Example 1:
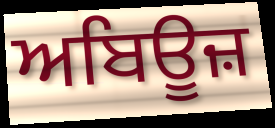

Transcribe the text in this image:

ਅਬਿਊਜ਼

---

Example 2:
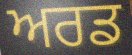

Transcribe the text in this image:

ਅਰਡ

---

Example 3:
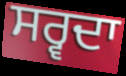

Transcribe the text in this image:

ਸਰ੍ਵਦਾ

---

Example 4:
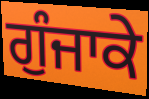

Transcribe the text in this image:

ਗੁੰਜਾਕੇ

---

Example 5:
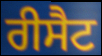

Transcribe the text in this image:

ਰੀਸੈਟ